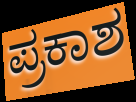
ಪ್ರಕಾಶ